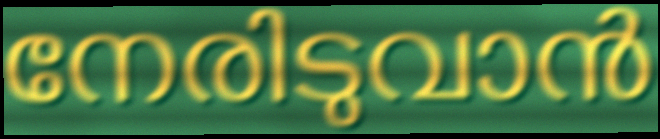
നേരിടുവാൻ